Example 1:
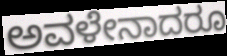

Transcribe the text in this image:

ಅವಳೇನಾದರೂ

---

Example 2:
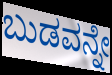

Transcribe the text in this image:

ಬುಡವನ್ನೇ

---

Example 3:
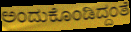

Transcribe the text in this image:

ಅಂದುಕೊಂಡಿದ್ದಂತೆ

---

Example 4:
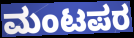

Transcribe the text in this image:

ಮಂಟಪರ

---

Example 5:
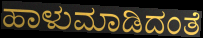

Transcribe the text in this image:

ಹಾಳುಮಾಡಿದಂತೆ